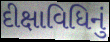
દીક્ષાવિધિનું